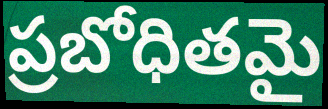
ప్రబోధితమై